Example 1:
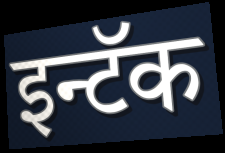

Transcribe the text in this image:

इन्टॅक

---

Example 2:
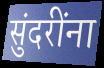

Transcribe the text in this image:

सुंदरींना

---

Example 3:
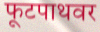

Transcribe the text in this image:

फूटपाथवर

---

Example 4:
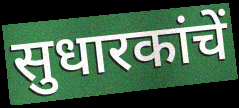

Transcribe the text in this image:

सुधारकांचें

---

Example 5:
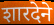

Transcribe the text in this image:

शारदेने